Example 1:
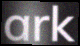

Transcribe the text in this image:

ark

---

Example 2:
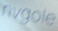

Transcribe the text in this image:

nvgole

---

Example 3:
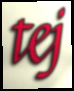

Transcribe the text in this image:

tej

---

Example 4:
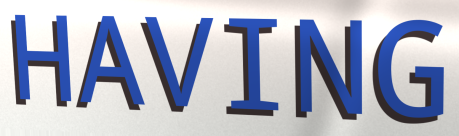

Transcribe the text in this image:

HAVING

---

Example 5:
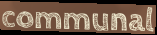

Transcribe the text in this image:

communal